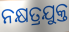
ନକ୍ଷତ୍ରଯୁକ୍ତ